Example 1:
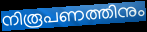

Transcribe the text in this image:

നിരൂപണത്തിനും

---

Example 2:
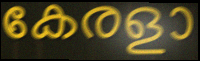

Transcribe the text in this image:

കേരളാ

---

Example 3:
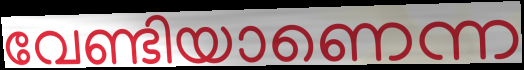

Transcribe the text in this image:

വേണ്ടിയാണെന്ന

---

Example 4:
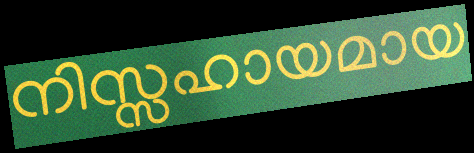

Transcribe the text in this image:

നിസ്സഹായമായ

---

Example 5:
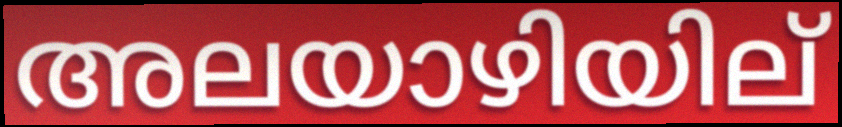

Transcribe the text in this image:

അലയാഴിയില്